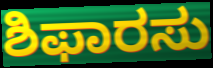
ಶಿಫಾರಸು